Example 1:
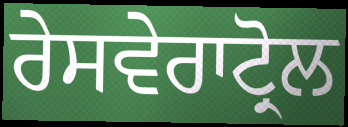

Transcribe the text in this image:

ਰੇਸਵੇਰਾਟ੍ਰੋਲ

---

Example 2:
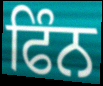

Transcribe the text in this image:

ਫਿੰਨ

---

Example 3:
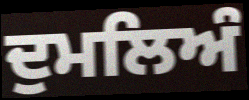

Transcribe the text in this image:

ਦੁਮਲਿਅੰ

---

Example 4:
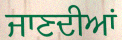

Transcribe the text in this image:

ਜਾਣਦੀਆਂ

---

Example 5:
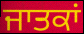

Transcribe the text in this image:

ਜਾਤਕਾਂ